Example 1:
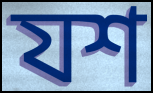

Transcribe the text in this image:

যশ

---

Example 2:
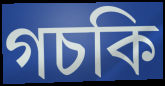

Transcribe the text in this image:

গচকি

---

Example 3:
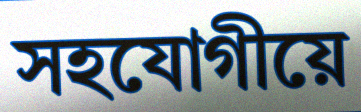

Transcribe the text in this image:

সহযোগীয়ে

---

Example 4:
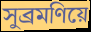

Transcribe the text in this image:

সুব্ৰমণিয়ে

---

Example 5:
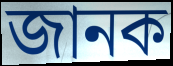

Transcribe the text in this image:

জানক